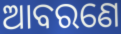
ଆବରଣେ